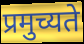
प्रमुच्यते